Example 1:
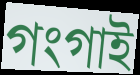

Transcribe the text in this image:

গংগাই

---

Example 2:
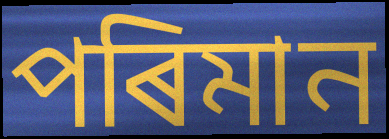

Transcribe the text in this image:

পৰিমান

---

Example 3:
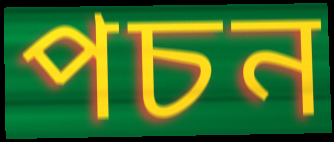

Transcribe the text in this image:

পচন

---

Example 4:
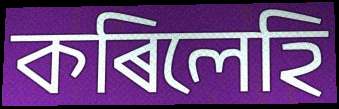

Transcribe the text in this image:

কৰিলেহি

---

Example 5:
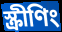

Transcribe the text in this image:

স্ক্ৰীণিং